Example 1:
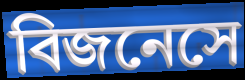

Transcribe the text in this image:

বিজনেসে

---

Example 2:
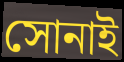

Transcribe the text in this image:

সোনাই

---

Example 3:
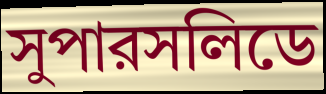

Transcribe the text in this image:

সুপারসলিডে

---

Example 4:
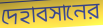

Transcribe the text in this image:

দেহাবসানের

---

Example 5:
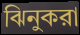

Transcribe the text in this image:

ঝিনুকরা